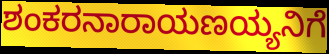
ಶಂಕರನಾರಾಯಣಯ್ಯನಿಗೆ